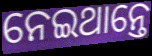
ନେଇଥାନ୍ତେ